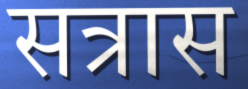
सत्रास